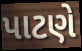
પાટણે